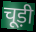
चूड़ी